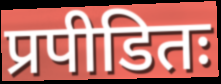
प्रपीडितः